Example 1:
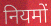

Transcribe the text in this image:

नियमों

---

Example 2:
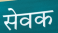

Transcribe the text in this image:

सेवक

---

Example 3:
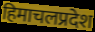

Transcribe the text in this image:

हिमाचलप्रदेश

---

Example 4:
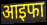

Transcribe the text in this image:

आइफा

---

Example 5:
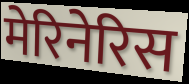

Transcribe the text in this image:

मेरिनेरिस